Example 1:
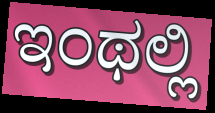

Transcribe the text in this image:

ಇಂಥಲ್ಲಿ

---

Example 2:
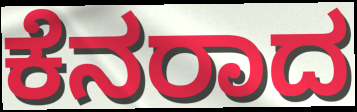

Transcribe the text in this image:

ಕೆನರಾದ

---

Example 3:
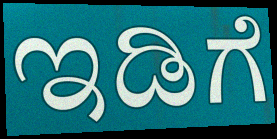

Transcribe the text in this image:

ಇಡಿಗೆ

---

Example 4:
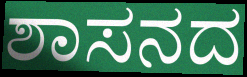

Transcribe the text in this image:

ಶಾಸನದ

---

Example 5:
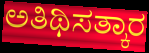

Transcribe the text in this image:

ಅತಿಥಿಸತ್ಕಾರ